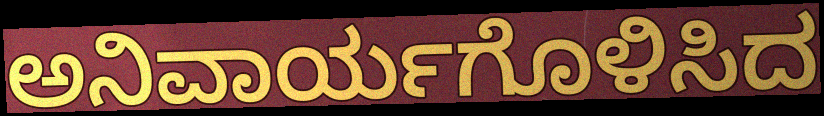
ಅನಿವಾರ್ಯಗೊಳಿಸಿದ